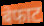
बेफाट